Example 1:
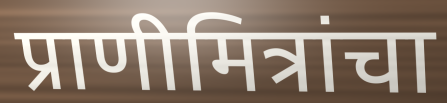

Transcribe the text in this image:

प्राणीमित्रांचा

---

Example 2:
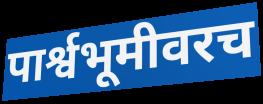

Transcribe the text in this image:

पार्श्वभूमीवरच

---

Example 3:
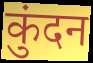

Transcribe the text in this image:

कुंदन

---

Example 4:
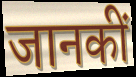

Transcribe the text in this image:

जानकीं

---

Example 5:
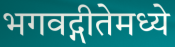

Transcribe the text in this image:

भगवद्गीतेमध्ये